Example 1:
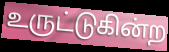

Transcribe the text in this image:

உருட்டுகின்ற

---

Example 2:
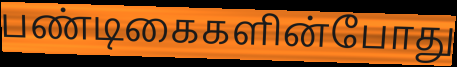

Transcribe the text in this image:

பண்டிகைகளின்போது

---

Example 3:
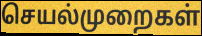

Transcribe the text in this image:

செயல்முறைகள்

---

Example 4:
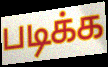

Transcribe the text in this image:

படிக்க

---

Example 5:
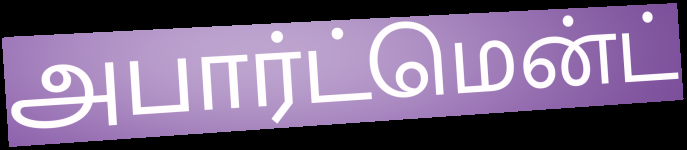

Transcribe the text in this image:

அபார்ட்மென்ட்